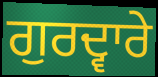
ਗੁਰਦ੍ਵਾਰੇ